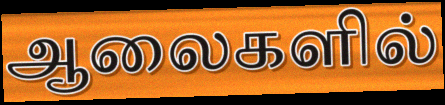
ஆலைகளில்